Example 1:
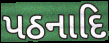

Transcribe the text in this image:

પઠનાદિ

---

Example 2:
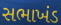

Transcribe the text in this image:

સભાખંડ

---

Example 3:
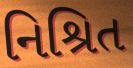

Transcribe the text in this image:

નિશ્રિત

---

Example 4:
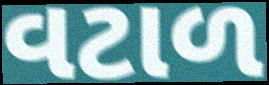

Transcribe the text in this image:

વટાળ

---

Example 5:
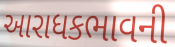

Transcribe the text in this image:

આરાધકભાવની